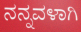
ನನ್ನವಳಾಗಿ